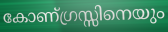
കോണ്ഗ്രസ്സിനെയും